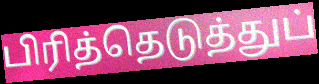
பிரித்தெடுத்துப்